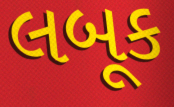
લબૂક